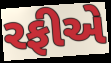
રફીએ